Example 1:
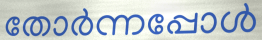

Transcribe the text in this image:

തോർന്നപ്പോൾ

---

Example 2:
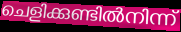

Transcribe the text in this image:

ചെളിക്കുണ്ടിൽനിന്ന്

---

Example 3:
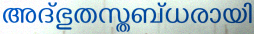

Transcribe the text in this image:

അദ്ഭുതസ്തബ്ധരായി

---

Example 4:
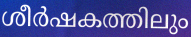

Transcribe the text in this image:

ശീർഷകത്തിലും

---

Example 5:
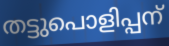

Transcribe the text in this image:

തട്ടുപൊളിപ്പന്